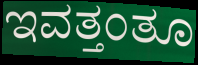
ಇವತ್ತಂತೂ